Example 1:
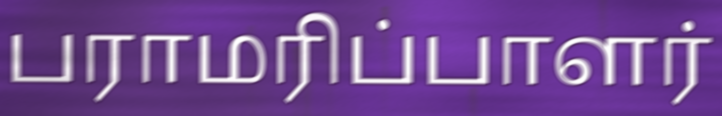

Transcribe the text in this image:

பராமரிப்பாளர்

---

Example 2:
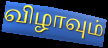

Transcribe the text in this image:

விழாவும்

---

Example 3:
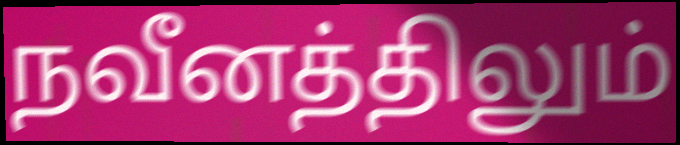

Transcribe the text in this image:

நவீனத்திலும்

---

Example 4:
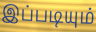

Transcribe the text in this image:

இப்படியும்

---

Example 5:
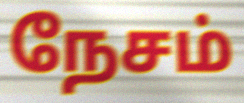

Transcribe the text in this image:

நேசம்